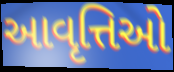
આવૃત્તિઓ